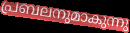
പ്രബലനുമാകുന്നു